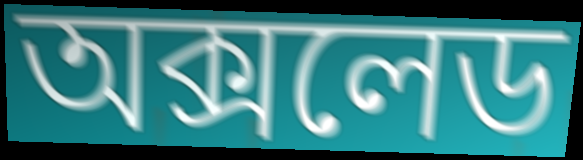
অক্সলেড